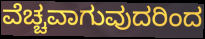
ವೆಚ್ಚವಾಗುವುದರಿಂದ